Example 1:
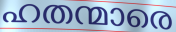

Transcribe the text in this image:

ഹതന്മാരെ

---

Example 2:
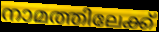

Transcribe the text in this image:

നാമത്തിലേക്ക്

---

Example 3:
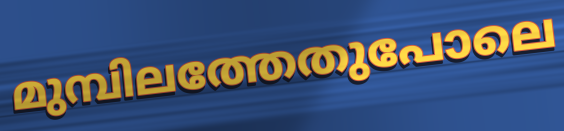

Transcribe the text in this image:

മുമ്പിലത്തേതുപോലെ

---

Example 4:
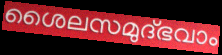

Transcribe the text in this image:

ശൈലസമുദ്ഭവാം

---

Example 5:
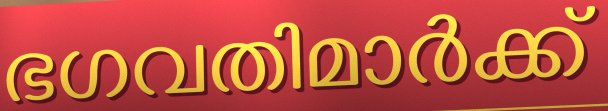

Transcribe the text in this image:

ഭഗവതിമാർക്ക്